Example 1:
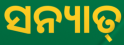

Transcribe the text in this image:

ସନ୍ୟାତ୍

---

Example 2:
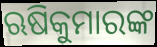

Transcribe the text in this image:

ଋଷିକୁମାରଙ୍କ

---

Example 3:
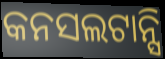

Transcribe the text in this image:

କନସଲଟାନ୍ସି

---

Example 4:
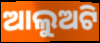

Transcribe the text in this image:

ଆଲୁଅଟି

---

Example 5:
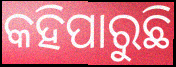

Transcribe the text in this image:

କହିପାରୁଛି